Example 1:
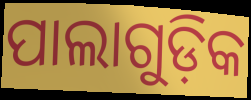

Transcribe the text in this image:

ପାଲାଗୁଡ଼ିକ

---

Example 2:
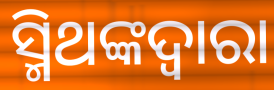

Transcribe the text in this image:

ସ୍ମିଥଙ୍କଦ୍ୱାରା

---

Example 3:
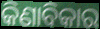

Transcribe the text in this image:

କିଣାବିକାର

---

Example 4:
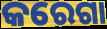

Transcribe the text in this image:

କରେଗା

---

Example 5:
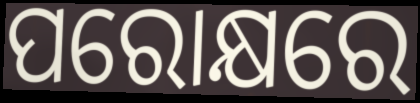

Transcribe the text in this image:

ପରୋକ୍ଷରେ